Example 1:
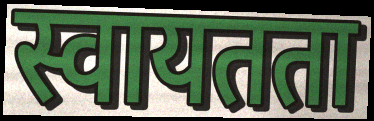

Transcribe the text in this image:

स्वायतता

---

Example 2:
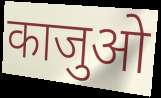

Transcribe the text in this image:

काजुओ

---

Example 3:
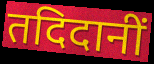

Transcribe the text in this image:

तदिदानीं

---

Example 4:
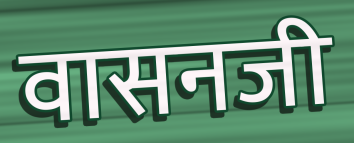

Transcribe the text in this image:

वासनजी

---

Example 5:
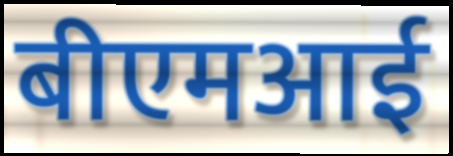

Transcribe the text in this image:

बीएमआई